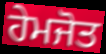
ਹੇਮਜੋਤ